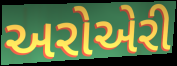
અરોએરી